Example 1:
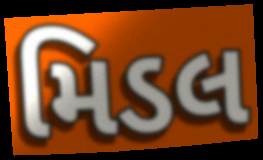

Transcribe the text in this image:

મિડલ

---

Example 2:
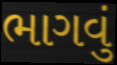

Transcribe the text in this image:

ભાગવું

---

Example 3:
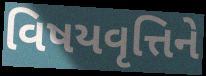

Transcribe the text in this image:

વિષયવૃત્તિને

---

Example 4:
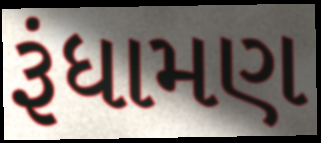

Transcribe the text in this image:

રૂંધામણ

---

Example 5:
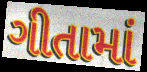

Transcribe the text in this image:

ગીતામાં